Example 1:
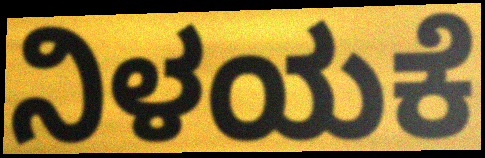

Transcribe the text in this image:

ನಿಳಯಕೆ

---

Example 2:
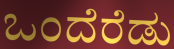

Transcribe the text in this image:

ಒಂದೆರೆಡು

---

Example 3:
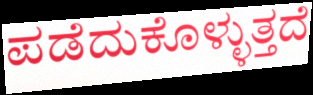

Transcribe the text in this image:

ಪಡೆದುಕೊಳ್ಳುತ್ತದೆ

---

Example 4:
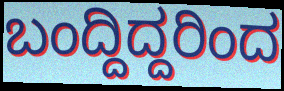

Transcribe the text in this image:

ಬಂದ್ದಿದ್ದರಿಂದ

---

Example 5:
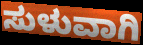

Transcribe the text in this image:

ಸುಳುವಾಗಿ